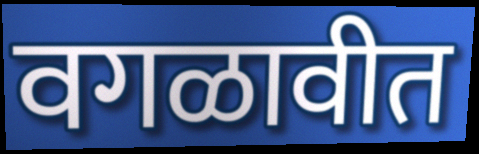
वगळावीत